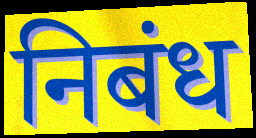
निबंध